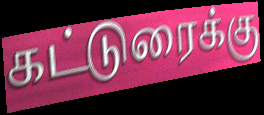
கட்டுரைக்கு